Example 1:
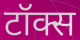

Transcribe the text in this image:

टॉक्स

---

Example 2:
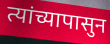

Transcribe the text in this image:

त्यांच्यापासुन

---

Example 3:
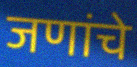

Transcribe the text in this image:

जणांचे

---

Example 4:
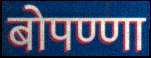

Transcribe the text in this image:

बोपण्णा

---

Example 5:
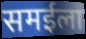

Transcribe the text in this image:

समईला